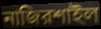
নাজিরশাইল